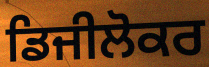
ਡਿਜੀਲੋਕਰ